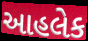
આહલેક